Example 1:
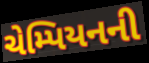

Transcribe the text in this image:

ચેમ્પિયનની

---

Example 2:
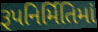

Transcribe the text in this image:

રૂપનિર્મિતિમાં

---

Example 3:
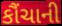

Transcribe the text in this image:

કૌંચાની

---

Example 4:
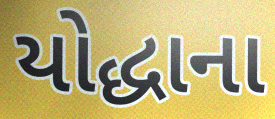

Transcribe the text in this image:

યોદ્ધાના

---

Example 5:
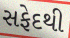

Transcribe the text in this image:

સફેદથી